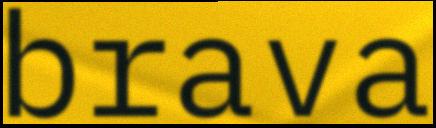
brava